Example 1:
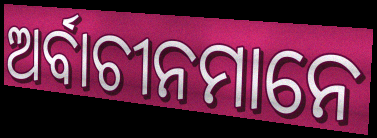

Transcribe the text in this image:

ଅର୍ବାଚୀନମାନେ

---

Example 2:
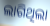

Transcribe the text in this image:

ଲାଗିଥିଲା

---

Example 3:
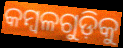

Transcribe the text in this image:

କମ୍ବଳଗୁଡ଼ିକୁ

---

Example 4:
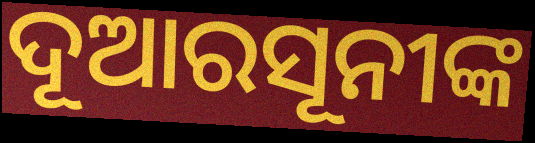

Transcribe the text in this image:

ଦୂଆରସୂନୀଙ୍କ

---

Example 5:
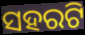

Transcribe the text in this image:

ସହରଟି